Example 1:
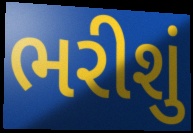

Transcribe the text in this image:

ભરીશું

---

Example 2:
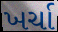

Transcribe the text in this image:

ખર્ચા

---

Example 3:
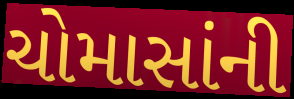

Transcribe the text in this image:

ચોમાસાંની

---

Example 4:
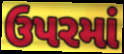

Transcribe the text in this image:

ઉપરમાં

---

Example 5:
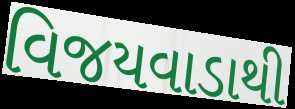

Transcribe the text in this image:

વિજયવાડાથી